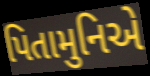
પિતામુનિએ